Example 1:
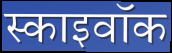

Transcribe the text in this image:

स्काइवॉक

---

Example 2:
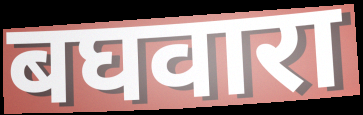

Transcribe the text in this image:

बघवारा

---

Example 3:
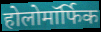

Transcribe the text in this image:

होलोमॉर्फिक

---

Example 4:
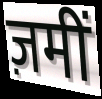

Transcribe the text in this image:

ज़मीं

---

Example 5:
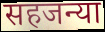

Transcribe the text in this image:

सहजन्या